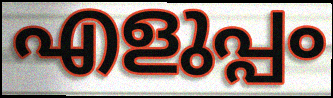
എളുപ്പം